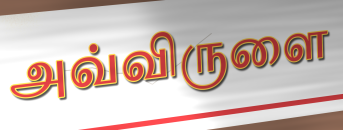
அவ்விருளை